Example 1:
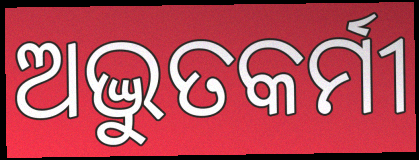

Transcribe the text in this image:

ଅଦ୍ଭୁତକର୍ମୀ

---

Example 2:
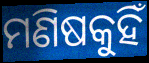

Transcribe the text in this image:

ମଣିଷକୁହିଁ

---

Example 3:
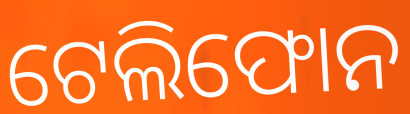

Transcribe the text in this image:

ଟେଲିଫୋନ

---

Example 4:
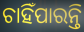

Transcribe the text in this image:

ଚାହିଁପାରନ୍ତି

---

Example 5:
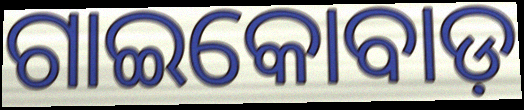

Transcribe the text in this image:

ଗାଇକୋବାଡ଼